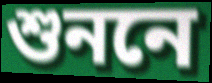
শুননে